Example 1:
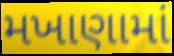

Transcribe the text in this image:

મખાણામાં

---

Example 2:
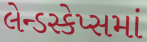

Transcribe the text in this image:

લેન્ડસ્કેપ્સમાં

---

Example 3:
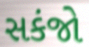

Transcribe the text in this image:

સકંજો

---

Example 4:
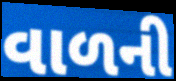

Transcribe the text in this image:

વાળની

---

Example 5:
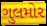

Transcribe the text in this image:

ગુલમોર